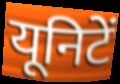
यूनिटें